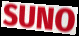
SUNO